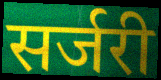
सर्जरी